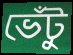
ভেঁটু